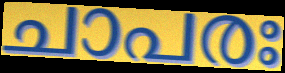
ചാപരഃ